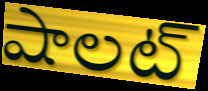
షాలట్